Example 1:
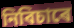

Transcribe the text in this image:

নিবিচাৰে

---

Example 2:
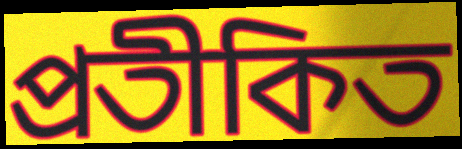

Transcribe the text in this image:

প্ৰতীকিত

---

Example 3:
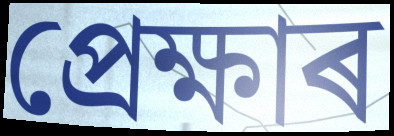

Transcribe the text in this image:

প্ৰেক্ষাৰ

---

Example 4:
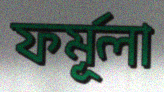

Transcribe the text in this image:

ফৰ্মূলা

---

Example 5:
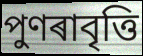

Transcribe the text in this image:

পুণৰাবৃত্তি